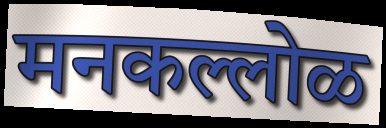
मनकल्लोळ